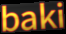
baki